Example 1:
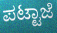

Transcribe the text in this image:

ಪಟ್ಟಾಜೆ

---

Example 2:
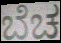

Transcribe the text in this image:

ಬೆಚ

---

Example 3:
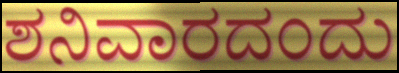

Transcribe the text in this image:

ಶನಿವಾರದಂದು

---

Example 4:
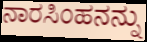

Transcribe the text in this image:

ನಾರಸಿಂಹನನ್ನು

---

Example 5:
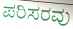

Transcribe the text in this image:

ಪರಿಸರವು